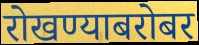
रोखण्याबरोबर